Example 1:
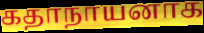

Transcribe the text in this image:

கதாநாயனாக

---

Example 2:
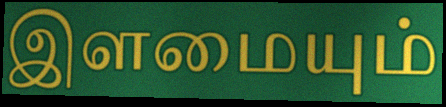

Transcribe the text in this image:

இளமையும்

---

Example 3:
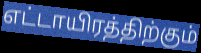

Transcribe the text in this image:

எட்டாயிரத்திற்கும்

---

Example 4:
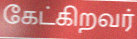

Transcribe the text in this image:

கேட்கிறவர்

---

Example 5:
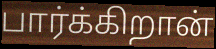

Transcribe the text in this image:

பார்க்கிறான்